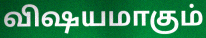
விஷயமாகும்